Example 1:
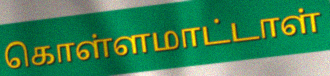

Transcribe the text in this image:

கொள்ளமாட்டாள்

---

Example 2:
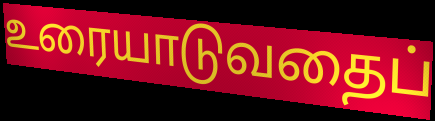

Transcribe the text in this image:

உரையாடுவதைப்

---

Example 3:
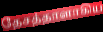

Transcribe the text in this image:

தேசத்தாளாகிய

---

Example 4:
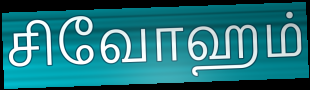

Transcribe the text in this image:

சிவோஹம்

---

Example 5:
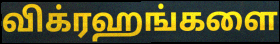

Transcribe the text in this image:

விக்ரஹங்களை